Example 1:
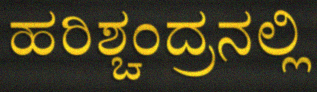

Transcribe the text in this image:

ಹರಿಶ್ಚಂದ್ರನಲ್ಲಿ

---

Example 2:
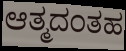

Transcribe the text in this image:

ಆತ್ಮದಂತಹ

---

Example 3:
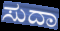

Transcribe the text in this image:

ಸುದಾ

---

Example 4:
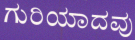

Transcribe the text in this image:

ಗುರಿಯಾದವು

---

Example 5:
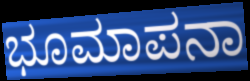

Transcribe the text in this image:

ಭೂಮಾಪನಾ